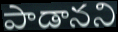
పాడానని